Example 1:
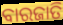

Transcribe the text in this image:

ବାରଜାତି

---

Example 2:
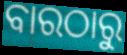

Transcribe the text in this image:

ବାରଠାରୁ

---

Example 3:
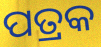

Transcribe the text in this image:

ପତ୍ରକ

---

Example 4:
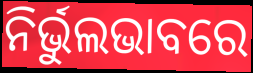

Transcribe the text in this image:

ନିର୍ଭୁଲଭାବରେ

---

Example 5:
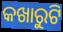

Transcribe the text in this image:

କଖାରୁଟି